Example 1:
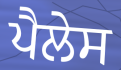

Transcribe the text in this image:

ਪੈਲੇਸ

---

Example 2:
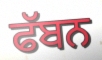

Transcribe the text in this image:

ਫੱਬਨ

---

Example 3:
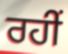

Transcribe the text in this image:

ਰਹੀਂ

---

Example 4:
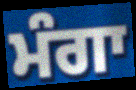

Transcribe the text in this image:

ਮੰਗਾ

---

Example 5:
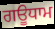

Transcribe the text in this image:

ਗਊਧਾਮ